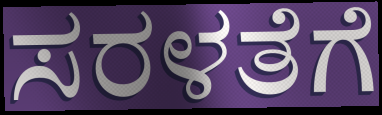
ಸರಳತೆಗೆ